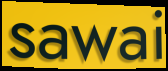
sawai